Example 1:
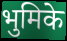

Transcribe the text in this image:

भुमिके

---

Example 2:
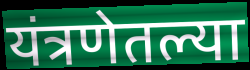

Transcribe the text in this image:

यंत्रणेतल्या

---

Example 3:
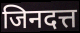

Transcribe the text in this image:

जिनदत्त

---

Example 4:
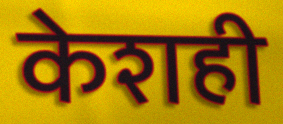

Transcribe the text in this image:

केशही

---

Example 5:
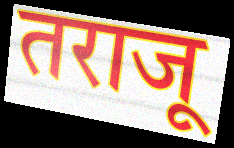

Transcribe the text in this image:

तराजू